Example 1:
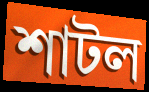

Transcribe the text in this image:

শাটল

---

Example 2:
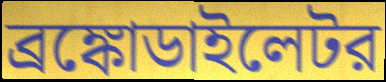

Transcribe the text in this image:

ব্রঙ্কোডাইলেটর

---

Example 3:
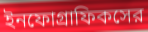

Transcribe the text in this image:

ইনফোগ্রাফিকসের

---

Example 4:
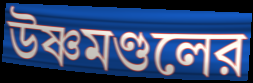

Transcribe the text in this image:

উষ্ণমণ্ডলের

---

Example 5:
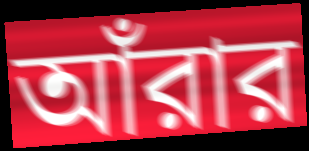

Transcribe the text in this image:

আঁরার